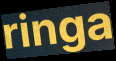
ringa